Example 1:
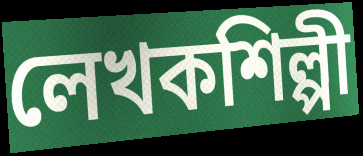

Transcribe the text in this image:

লেখকশিল্পী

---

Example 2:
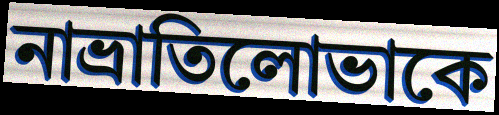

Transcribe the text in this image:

নাভ্রাতিলোভাকে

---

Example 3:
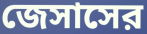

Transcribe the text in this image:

জেসাসের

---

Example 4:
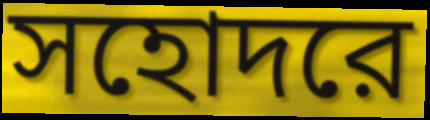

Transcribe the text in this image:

সহোদরে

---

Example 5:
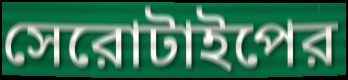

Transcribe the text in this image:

সেরোটাইপের